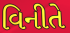
વિનીતે